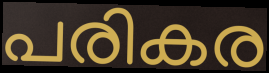
പരികര